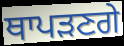
ਥਾਪੜਣਗੇ